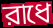
রাধে